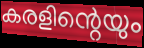
കരളിന്റെയും